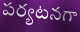
పర్యటనగా